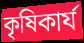
কৃষিকাৰ্য